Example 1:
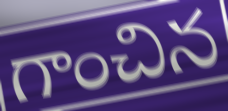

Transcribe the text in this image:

గాంచిన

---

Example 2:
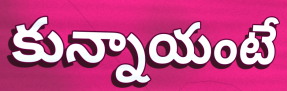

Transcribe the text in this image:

కున్నాయంటే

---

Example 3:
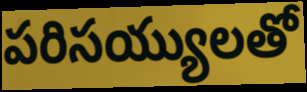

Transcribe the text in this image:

పరిసయ్యులతో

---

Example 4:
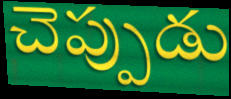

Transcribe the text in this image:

చెప్పుడు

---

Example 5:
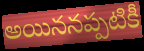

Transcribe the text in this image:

అయిననప్పటికీ